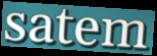
satem